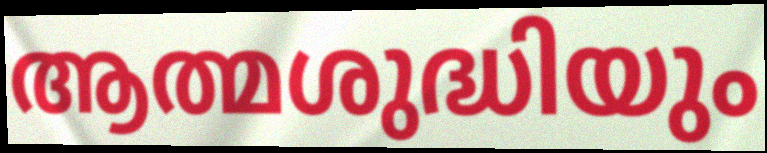
ആത്മശുദ്ധിയും